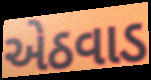
એઠવાડ